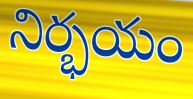
నిర్భయం